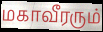
மகாவீரரும்